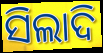
ସିଲାଦି